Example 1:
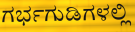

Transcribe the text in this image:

ಗರ್ಭಗುಡಿಗಳಲ್ಲಿ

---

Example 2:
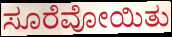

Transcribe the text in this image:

ಸೂರೆವೋಯಿತು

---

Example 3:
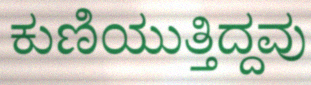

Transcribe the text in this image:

ಕುಣಿಯುತ್ತಿದ್ದವು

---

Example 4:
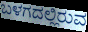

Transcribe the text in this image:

ಬಳಗದಲ್ಲಿರುವ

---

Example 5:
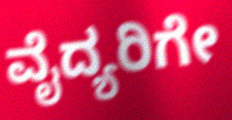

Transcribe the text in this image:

ವೈದ್ಯರಿಗೇ